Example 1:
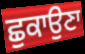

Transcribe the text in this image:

ਛੁਕਾਉਣਾ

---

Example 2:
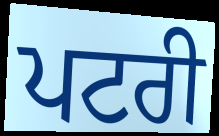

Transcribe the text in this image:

ਪਟਰੀ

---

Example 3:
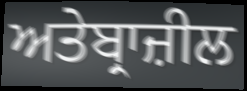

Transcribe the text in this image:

ਅਤੇਬ੍ਰਾਜ਼ੀਲ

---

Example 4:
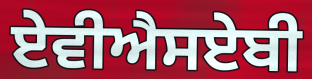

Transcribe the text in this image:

ਏਵੀਐਸਏਬੀ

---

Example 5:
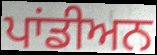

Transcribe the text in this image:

ਪਾਂਡੀਅਨ